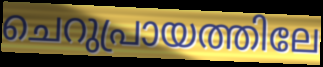
ചെറുപ്രായത്തിലേ